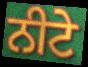
ਨੀਟੇ